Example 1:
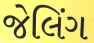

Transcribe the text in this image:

જેલિંગ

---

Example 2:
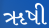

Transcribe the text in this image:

ૠષી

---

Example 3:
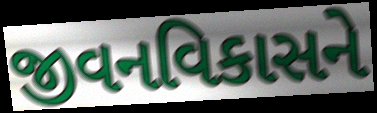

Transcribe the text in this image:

જીવનવિકાસને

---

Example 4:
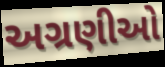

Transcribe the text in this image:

અગ્રણીઓ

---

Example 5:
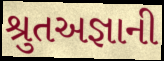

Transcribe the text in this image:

શ્રુતઅજ્ઞાની